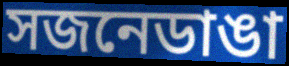
সজনেডাঙা